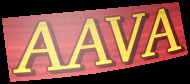
AAVA